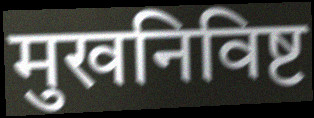
मुखनिविष्ट